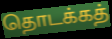
தொடக்கத்